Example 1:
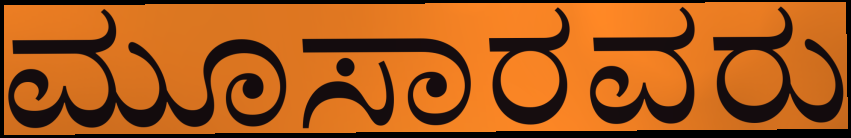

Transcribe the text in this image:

ಮೂಸಾರವರು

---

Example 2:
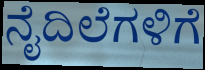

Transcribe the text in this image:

ನೈದಿಲೆಗಳಿಗೆ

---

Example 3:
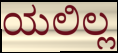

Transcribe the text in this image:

ಯಲಿಲ್ಲ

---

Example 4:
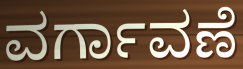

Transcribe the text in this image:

ವರ್ಗಾವಣೆ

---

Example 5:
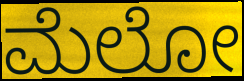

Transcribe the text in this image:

ಮೆಲೋ